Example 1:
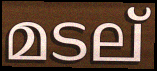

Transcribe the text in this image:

മടല്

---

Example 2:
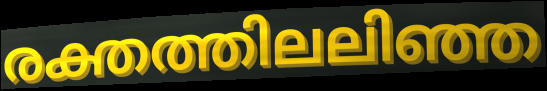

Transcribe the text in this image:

രക്തത്തിലലിഞ്ഞ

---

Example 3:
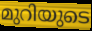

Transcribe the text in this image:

മുറിയുടെ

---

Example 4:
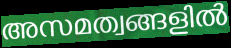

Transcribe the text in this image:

അസമത്വങ്ങളിൽ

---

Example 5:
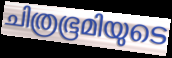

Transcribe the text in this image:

ചിത്രഭൂമിയുടെ